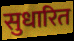
सुधारित